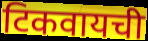
टिकवायची